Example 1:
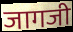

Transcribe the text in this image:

जागजी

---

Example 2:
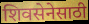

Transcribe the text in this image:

शिवसेनेसाठी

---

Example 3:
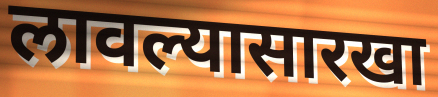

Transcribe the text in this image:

लावल्यासारखा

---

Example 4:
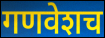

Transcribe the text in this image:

गणवेशच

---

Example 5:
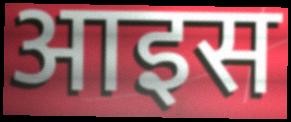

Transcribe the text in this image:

आइस